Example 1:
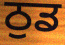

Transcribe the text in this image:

ਠੁਡ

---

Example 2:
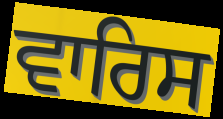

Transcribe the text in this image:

ਵਾਰਿਸ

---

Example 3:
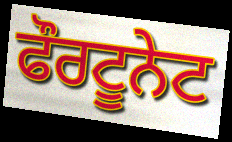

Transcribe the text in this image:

ਫੌਰਟੂਨੇਟ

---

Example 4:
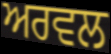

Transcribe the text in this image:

ਅਰਵਲ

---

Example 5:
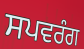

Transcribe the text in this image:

ਸਪਵਰੰਗ